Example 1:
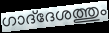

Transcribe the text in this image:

ഗാദ്‌ദേശത്തും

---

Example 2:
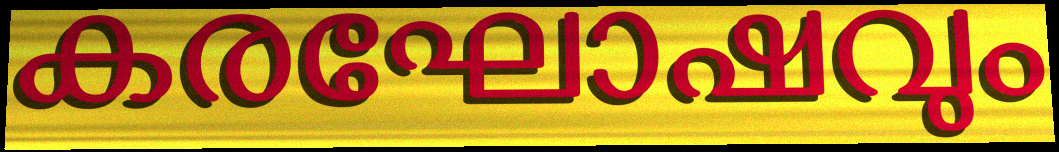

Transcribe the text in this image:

കരഘോഷവും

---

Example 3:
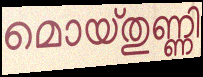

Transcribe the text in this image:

മൊയ്തുണ്ണി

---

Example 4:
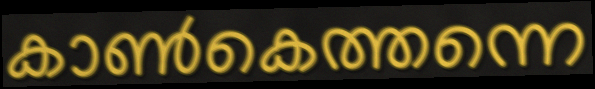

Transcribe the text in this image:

കാൺകെത്തന്നെ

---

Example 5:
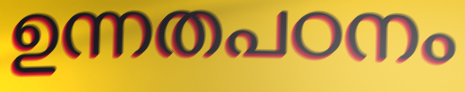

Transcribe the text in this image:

ഉന്നതപഠനം